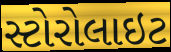
સ્ટોરોલાઇટ